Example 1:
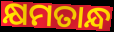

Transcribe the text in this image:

କ୍ଷମତାନ୍ଧ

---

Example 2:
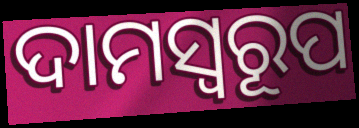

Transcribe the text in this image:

ଦାମସ୍ୱରୂପ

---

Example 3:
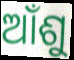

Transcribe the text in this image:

ଆଁଶୁ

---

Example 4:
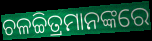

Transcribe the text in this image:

ଚଳଚ୍ଚିତ୍ରମାନଙ୍କରେ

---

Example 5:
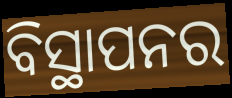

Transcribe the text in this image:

ବିସ୍ଥାପନର